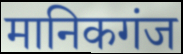
मानिकगंज